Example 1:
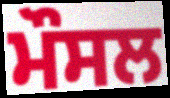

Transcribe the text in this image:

ਮੌਸਲ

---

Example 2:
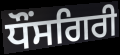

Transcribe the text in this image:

ਧੌਂਸਗਿਰੀ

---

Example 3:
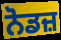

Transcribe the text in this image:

ਨੋਡਜ਼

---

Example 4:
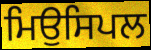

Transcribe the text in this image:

ਮਿਉਸਿਪਲ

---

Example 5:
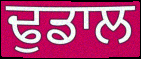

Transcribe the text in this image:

ਢੁਡਾਲ